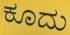
ಕೂದು